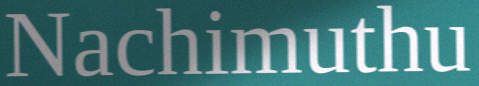
Nachimuthu